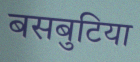
बसबुटिया